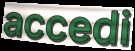
accedi